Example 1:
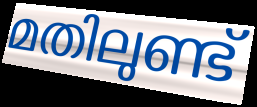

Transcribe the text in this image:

മതിലുണ്ട്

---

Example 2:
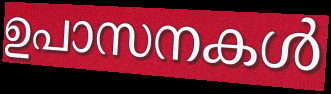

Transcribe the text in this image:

ഉപാസനകൾ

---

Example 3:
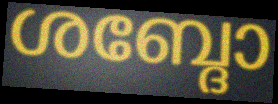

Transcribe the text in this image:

ശബ്ദോ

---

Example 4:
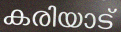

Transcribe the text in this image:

കരിയാട്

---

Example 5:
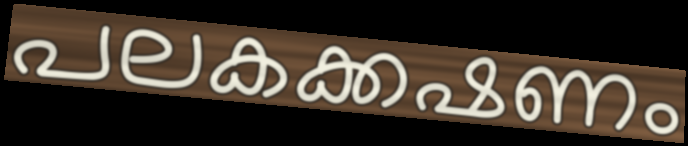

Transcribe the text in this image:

പലകക്കഷണം